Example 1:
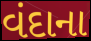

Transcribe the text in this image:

વંદાના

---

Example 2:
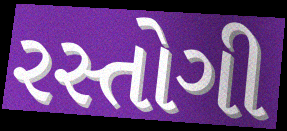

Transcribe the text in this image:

રસ્તોગી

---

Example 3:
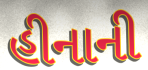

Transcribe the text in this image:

હીનાની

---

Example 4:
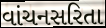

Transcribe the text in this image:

વાંચનસરિતા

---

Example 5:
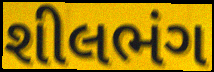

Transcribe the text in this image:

શીલભંગ